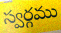
స్వర్గము